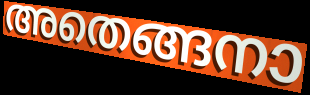
അതെങ്ങനാ